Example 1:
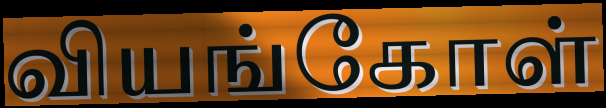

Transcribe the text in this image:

வியங்கோள்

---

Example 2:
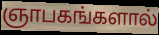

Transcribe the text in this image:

ஞாபகங்களால்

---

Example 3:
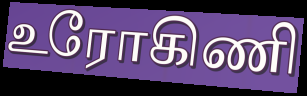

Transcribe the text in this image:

உரோகிணி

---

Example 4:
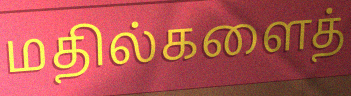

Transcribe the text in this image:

மதில்களைத்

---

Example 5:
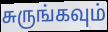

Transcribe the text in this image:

சுருங்கவும்